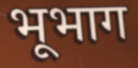
भूभाग